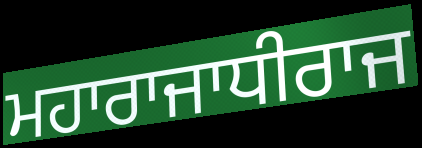
ਮਹਾਰਾਜਾਧੀਰਾਜ